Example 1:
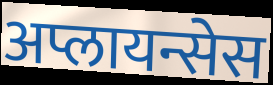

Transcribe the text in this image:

अप्लायन्सेस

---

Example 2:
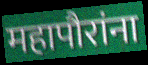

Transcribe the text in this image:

महापौरांना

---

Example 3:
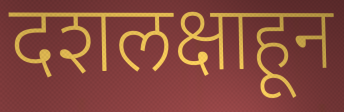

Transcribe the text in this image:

दशलक्षाहून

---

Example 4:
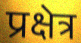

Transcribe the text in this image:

प्रक्षेत्र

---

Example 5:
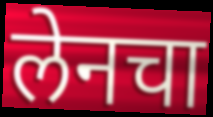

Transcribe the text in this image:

लेनचा